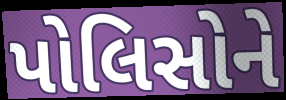
પોલિસોને